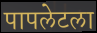
पापलेटला